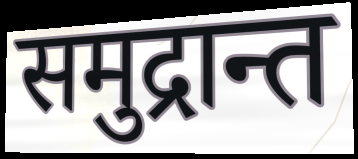
समुद्रान्त